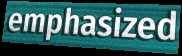
emphasized